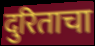
दुरिताचा